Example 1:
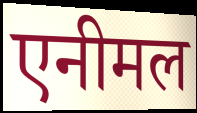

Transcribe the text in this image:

एनीमल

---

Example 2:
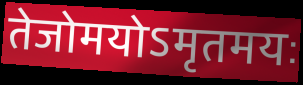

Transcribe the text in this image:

तेजोमयोऽमृतमयः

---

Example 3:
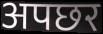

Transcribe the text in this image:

अपछर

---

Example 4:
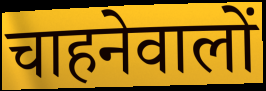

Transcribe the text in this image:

चाहनेवालों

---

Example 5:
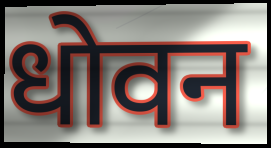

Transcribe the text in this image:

धोवन